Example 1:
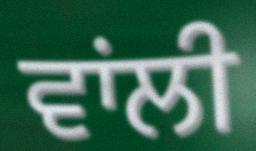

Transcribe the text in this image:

ਵਾਂਲੀ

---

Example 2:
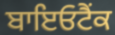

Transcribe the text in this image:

ਬਾਇਓਟੈਂਕ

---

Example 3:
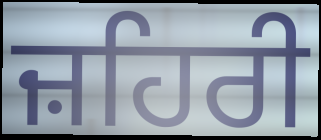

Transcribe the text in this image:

ਜ਼ਹਿਰੀ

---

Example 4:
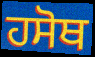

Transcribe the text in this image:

ਹਸੋਥ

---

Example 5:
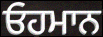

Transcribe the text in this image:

ਓਹਮਾਨ